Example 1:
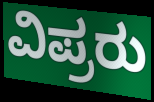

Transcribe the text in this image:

ವಿಪ್ರರು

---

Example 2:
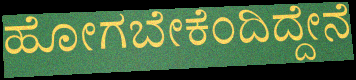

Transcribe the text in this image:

ಹೋಗಬೇಕೆಂದಿದ್ದೇನೆ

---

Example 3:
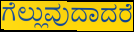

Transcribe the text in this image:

ಗೆಲ್ಲುವುದಾದರೆ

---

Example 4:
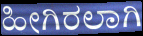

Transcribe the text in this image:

ಹೀಗಿರಲಾಗಿ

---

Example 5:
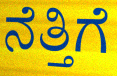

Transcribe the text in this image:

ನೆತ್ತಿಗೆ